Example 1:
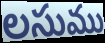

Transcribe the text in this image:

లసుము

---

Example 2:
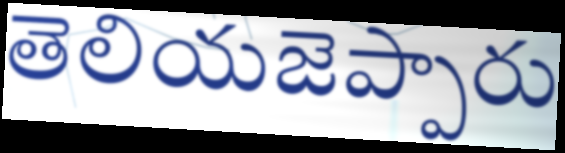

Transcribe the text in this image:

తెలియజెప్పారు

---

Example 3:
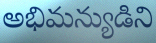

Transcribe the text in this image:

అభిమన్యుడిని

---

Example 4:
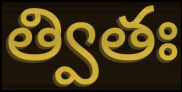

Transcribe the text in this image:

త్వితః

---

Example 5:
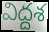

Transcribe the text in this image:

విద్దశ